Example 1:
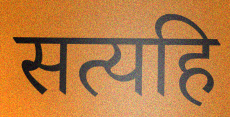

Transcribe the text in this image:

सत्यहि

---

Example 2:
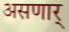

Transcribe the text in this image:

असणार्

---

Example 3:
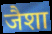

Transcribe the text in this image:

जैशा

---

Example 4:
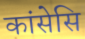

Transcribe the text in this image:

कांसेसि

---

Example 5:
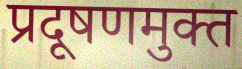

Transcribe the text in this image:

प्रदूषणमुक्त